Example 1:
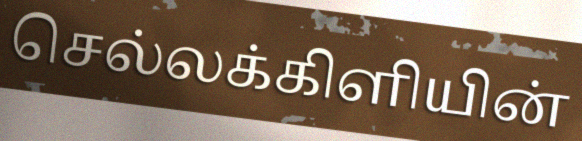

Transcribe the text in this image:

செல்லக்கிளியின்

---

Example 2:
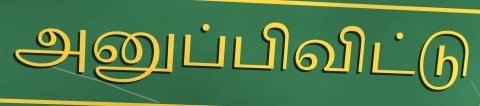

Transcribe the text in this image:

அனுப்பிவிட்டு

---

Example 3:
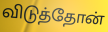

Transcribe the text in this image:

விடுத்தோன்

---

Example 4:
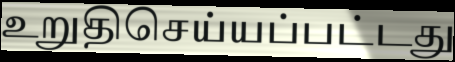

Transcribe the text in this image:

உறுதிசெய்யப்பட்டது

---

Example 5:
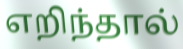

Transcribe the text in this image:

எறிந்தால்